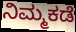
ನಿಮ್ಮಕಡೆ